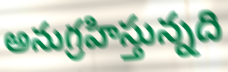
అనుగ్రహిస్తున్నది